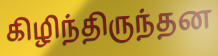
கிழிந்திருந்தன